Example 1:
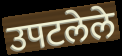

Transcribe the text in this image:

उपटलेले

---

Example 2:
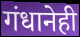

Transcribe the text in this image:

गंधानेही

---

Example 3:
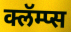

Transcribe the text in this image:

क्लॅम्प्स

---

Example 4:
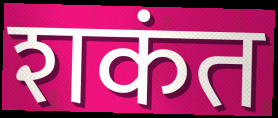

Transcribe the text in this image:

शकंत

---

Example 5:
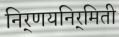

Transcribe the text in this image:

निर्णयनिर्मिती